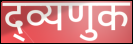
द्व्यणुक